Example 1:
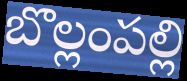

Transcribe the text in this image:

బొల్లంపల్లి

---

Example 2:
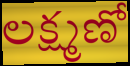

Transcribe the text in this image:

లక్ష్మణో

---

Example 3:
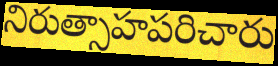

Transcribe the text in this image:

నిరుత్సాహపరిచారు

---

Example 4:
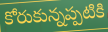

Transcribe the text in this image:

కోరుకున్నప్పటికి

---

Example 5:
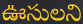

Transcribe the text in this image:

ఊసులని